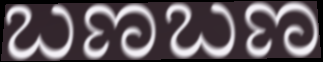
ಬಣಬಣ